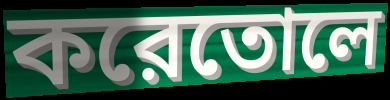
করেতোলে